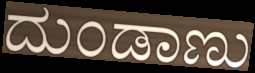
ದುಂಡಾಣು